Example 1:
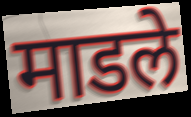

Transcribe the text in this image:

माडले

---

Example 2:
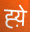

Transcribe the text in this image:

ह्य़े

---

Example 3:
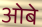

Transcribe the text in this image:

ओबे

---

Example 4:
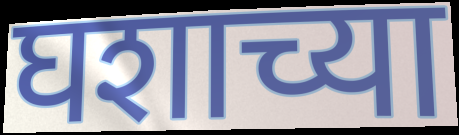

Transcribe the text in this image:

घशाच्या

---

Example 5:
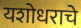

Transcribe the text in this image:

यशोधराचे